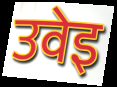
उवेइ